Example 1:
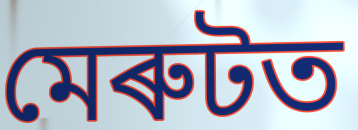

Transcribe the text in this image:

মেৰুটত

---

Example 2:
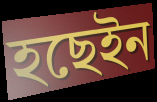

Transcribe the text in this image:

হছেইন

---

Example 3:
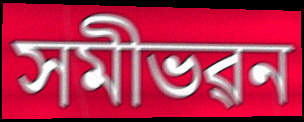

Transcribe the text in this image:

সমীভৱন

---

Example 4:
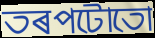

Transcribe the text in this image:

তৰপটোতো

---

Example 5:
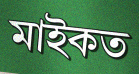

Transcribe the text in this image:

মাইকত